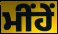
ਮੀਂਹੇਂ